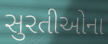
સુરતીઓના